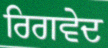
ਰਿਗਵੇਦ